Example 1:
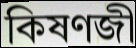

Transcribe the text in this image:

কিষণজী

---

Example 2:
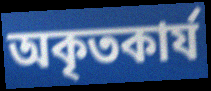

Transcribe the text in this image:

অকৃতকার্য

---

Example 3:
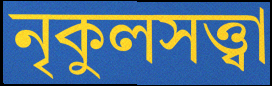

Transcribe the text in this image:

নৃকুলসত্ত্বা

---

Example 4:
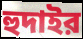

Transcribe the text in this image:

হুদাইর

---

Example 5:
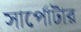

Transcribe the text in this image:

সার্পোটার